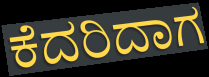
ಕೆದರಿದಾಗ